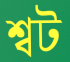
শ্বট